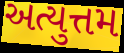
અત્યુત્તમ